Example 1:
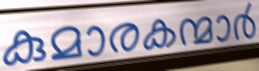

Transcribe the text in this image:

കുമാരകന്മാർ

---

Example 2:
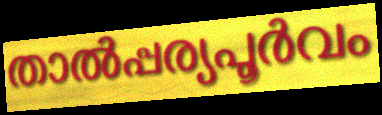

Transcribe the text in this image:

താൽപ്പര്യപൂർവം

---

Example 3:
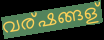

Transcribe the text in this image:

വര്ഷങ്ങള്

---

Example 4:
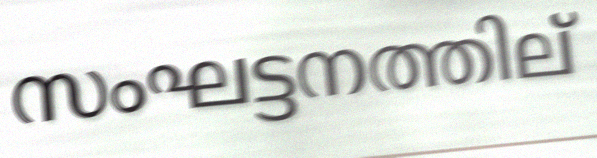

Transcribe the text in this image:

സംഘട്ടനത്തില്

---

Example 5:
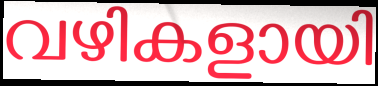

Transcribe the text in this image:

വഴികളായി